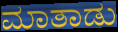
ಮಾತಾಡು